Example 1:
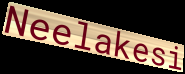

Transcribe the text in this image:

Neelakesi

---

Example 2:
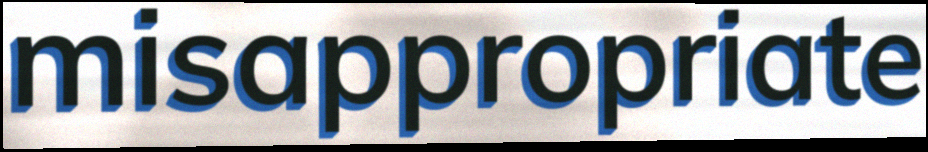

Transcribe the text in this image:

misappropriate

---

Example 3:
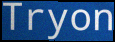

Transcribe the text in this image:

Tryon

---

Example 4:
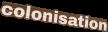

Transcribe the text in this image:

colonisation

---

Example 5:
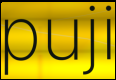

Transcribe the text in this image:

puji